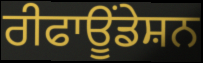
ਰੀਫਾਊਂਡੇਸ਼ਨ